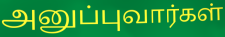
அனுப்புவார்கள்